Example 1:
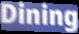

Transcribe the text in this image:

Dining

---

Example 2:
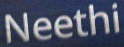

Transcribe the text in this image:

Neethi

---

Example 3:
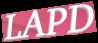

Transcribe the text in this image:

LAPD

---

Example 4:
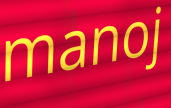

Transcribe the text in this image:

manoj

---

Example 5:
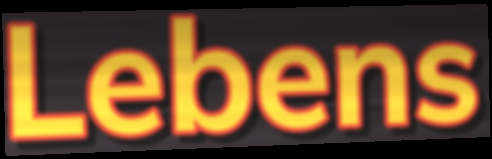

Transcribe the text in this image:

Lebens